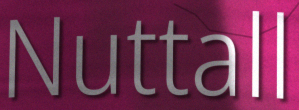
Nuttall